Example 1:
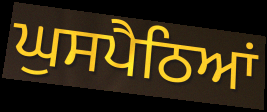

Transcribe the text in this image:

ਘੁਸਪੈਠਿਆਂ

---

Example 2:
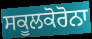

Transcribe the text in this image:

ਸਕੂਲਕੋਰੋਨਾ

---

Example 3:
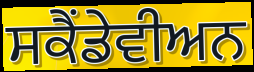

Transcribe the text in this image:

ਸਕੈਂਡੇਵੀਅਨ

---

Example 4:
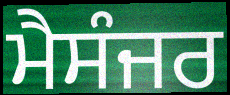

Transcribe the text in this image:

ਮੈਸੰਜਰ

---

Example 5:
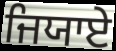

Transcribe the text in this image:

ਜਿਯਾਏ